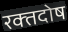
रक्‍तदोष